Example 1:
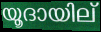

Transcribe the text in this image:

യൂദായില്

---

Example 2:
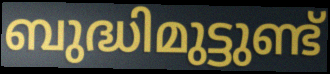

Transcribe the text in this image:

ബുദ്ധിമുട്ടുണ്ട്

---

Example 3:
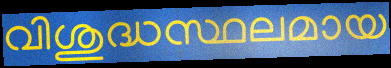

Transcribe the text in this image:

വിശുദ്ധസ്ഥലമായ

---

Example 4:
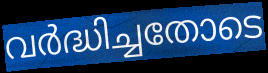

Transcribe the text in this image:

വർദ്ധിച്ചതോടെ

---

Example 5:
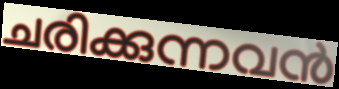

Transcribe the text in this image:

ചരിക്കുന്നവൻ